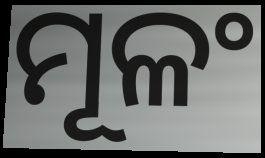
ମୂଳଂ